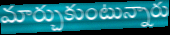
మార్చుకుంటున్నారు